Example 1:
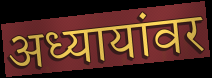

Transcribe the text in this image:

अध्यायांवर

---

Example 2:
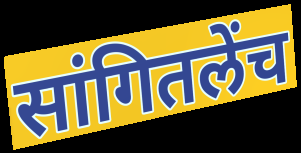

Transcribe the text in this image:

सांगितलेंच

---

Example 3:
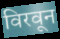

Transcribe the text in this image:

विरवून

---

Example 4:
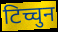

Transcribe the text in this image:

टिच्चुन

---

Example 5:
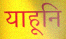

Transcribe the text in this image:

याहूनि